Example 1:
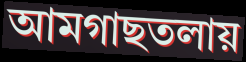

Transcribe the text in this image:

আমগাছতলায়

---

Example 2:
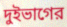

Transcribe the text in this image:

দুইভাগের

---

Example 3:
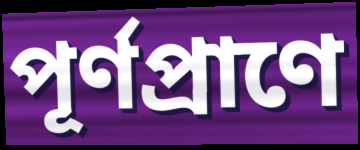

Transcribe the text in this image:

পূর্ণপ্রাণে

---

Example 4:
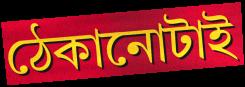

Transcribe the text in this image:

ঠেকানোটাই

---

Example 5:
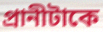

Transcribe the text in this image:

প্রানীটাকে